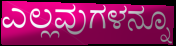
ಎಲ್ಲವುಗಳನ್ನೂ